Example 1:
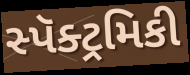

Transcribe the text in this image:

સ્પૅક્ટ્રમિકી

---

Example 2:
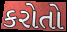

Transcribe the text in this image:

કરોતો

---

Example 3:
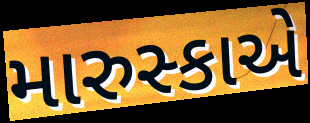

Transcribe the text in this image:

મારુસ્કાએ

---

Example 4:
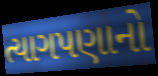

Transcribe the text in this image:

ત્યાગપણાનો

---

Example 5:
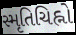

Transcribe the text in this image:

સ્મૃતિચિહ્નો